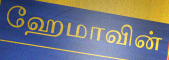
ஹேமாவின்